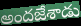
అందజేశాడు